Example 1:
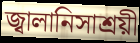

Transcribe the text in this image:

জ্বালানিসাশ্রয়ী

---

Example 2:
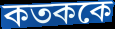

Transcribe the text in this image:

কতককে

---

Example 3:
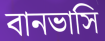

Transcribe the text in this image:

বানভাসি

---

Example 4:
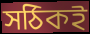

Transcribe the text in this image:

সঠিকই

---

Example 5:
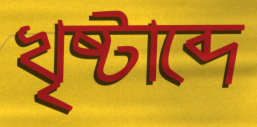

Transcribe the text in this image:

খৃষ্টাব্দে